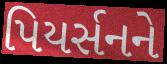
પિયર્સનને